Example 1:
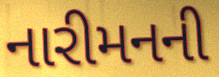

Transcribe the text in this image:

નારીમનની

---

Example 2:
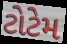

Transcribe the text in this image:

ટોટેમ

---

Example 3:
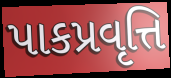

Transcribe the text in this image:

પાકપ્રવૃત્તિ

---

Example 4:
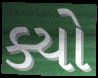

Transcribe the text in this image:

ક્યો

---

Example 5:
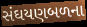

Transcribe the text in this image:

સંઘયણબળના